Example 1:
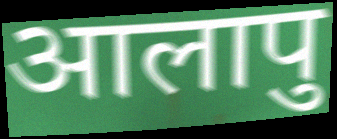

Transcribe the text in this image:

आलापु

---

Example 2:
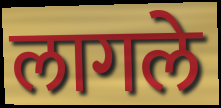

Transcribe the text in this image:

लागले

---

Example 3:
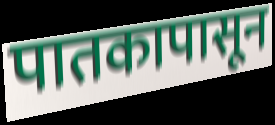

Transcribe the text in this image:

पातकापासून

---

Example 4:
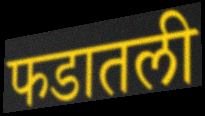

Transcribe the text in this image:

फडातली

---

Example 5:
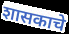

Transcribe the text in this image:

शासकाचे